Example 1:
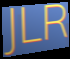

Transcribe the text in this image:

JLR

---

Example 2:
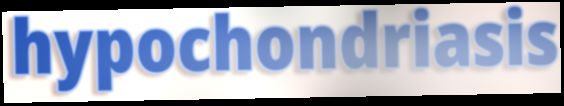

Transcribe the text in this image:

hypochondriasis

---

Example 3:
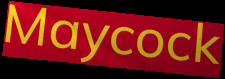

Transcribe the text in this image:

Maycock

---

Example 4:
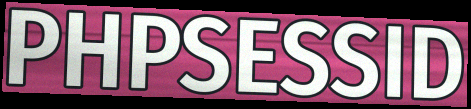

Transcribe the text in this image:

PHPSESSID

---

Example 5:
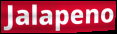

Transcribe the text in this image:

Jalapeno